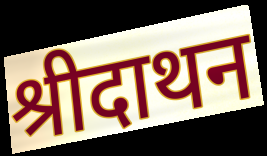
श्रीदाथन